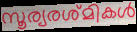
സൂര്യരശ്മികൾ